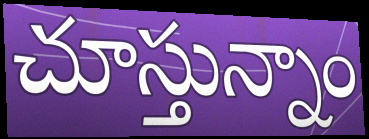
చూస్తున్నాం